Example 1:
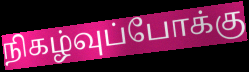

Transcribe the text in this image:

நிகழ்வுப்போக்கு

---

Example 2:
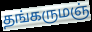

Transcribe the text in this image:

தங்கருமஞ்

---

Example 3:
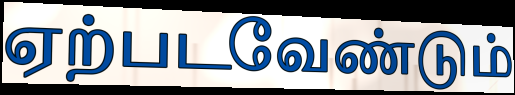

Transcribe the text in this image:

ஏற்படவேண்டும்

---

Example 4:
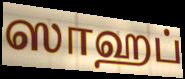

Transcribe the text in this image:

ஸாஹப்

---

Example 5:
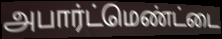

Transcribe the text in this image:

அபார்ட்மெண்ட்டை